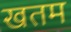
खतम